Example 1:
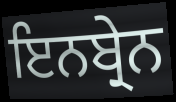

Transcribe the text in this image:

ਇਨਬ੍ਰੇਨ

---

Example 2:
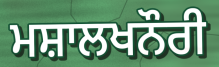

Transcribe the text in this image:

ਮਸ਼ਾਲਖਨੌਰੀ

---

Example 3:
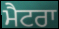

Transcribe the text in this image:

ਮੈਟਰਾ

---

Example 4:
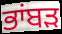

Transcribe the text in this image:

ਭਾਂਬੜ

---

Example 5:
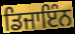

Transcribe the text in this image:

ਡਿਜਾਇੰਨ